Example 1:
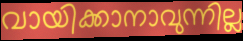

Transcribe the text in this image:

വായിക്കാനാവുന്നില്ല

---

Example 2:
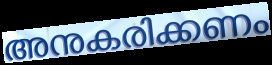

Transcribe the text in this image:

അനുകരിക്കണം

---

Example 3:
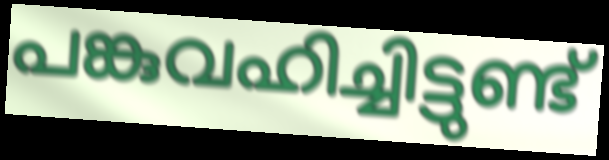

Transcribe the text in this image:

പങ്കുവഹിച്ചിട്ടുണ്ട്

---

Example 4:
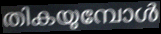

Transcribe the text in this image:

തികയുമ്പോൾ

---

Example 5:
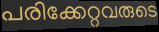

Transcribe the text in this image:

പരിക്കേറ്റവരുടെ